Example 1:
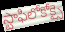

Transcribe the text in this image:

స్టాఫిలోకోక్సై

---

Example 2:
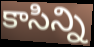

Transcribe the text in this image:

కాసిన్ని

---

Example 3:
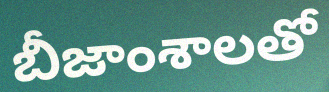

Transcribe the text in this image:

బీజాంశాలతో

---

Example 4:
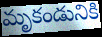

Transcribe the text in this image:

మృకండునికి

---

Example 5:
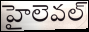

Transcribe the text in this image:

హైలెవల్